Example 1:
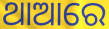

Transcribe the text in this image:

ଥାଆରେ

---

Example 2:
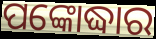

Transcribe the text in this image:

ପଙ୍କୋଦ୍ଧାର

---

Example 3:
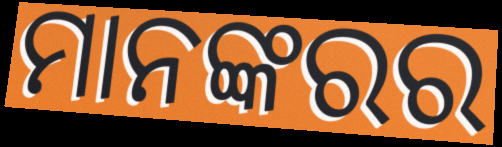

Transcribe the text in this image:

ମାନଙ୍କରର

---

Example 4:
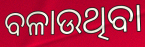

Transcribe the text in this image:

ବଳାଉଥିବା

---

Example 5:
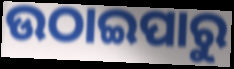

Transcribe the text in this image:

ଉଠାଇପାରୁ